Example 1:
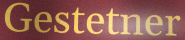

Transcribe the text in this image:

Gestetner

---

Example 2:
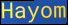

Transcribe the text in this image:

Hayom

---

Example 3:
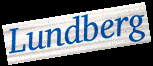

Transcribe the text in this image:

Lundberg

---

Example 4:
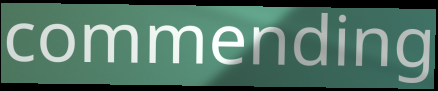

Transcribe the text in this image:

commending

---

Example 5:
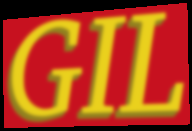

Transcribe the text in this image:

GIL